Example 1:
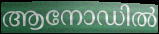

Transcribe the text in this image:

ആനോഡിൽ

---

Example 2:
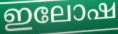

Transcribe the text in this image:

ഇലോഷ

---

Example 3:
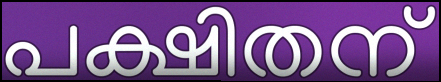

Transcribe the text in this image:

പക്ഷിതന്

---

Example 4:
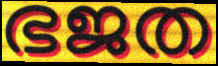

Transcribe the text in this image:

ഭജത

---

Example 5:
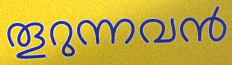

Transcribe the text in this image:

തൂറുന്നവൻ